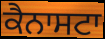
ਕੈਨਾਸਟਾ